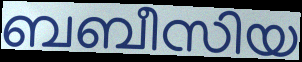
ബബീസിയ